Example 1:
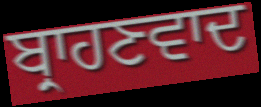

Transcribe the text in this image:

ਬ੍ਰਾਹਣਵਾਦ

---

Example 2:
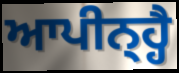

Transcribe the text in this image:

ਆਪੀਨ੍ਹ੍ਹੈ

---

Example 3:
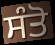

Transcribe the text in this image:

ਸੰਤੋ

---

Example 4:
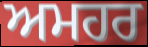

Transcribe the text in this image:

ਅਮਹਰ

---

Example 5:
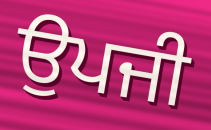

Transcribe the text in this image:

ਉਪਜੀ